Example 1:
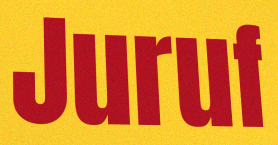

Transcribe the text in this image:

Juruf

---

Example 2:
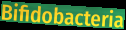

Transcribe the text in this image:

Bifidobacteria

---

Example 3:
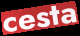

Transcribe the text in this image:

cesta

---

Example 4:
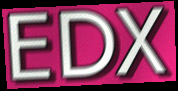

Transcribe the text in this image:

EDX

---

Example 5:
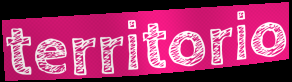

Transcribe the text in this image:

territorio